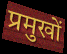
प्रमुखों